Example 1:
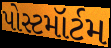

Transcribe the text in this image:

પોસ્ટમૉર્ટમ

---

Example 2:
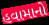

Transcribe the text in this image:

હવામાનો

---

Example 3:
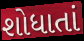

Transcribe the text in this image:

શોધાતાં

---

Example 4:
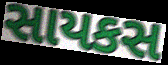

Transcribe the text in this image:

સાયકસ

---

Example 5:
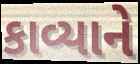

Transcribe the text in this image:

કાવ્યાને